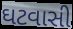
ઘટવાસી